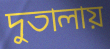
দুতালায়